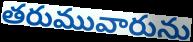
తరుమువారును